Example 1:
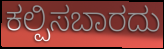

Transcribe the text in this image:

ಕಲ್ಪಿಸಬಾರದು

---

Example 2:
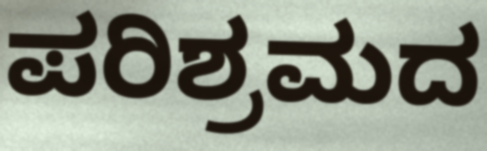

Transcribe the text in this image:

ಪರಿಶ್ರಮದ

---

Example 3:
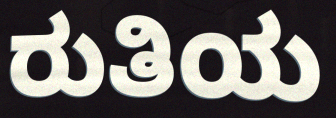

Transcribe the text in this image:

ರುತಿಯ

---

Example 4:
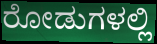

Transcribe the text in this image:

ರೋಡುಗಳಲ್ಲಿ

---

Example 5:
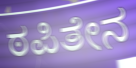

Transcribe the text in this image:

ಠಪಿತೇನ